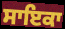
ਸਾਇਕਾ